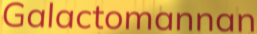
Galactomannan